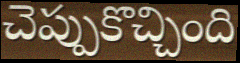
చెప్పుకొచ్చింది